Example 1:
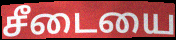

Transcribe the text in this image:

சீடையை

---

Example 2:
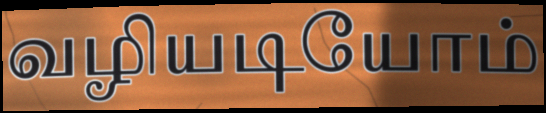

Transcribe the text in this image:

வழியடியோம்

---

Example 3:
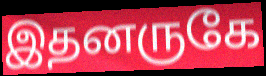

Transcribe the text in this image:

இதனருகே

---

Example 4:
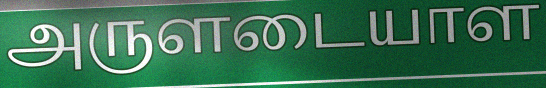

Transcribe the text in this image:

அருளடையாள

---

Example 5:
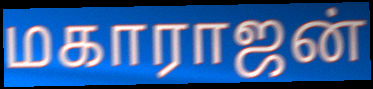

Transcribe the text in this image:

மகாராஜன்